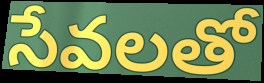
సేవలతో